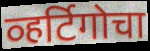
व्हर्टिगोचा